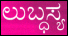
ಲುಬ್ಧಸ್ಯ